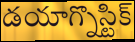
డయాగ్నొస్టిక్